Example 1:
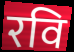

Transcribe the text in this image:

रवि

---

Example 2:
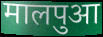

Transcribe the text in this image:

मालपुआ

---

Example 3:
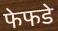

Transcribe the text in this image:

फेफडे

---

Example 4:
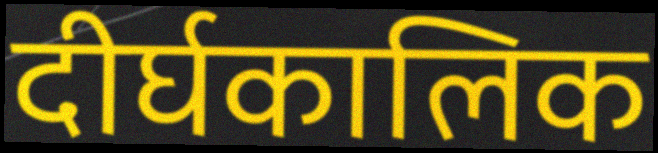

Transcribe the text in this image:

दीर्घकालिक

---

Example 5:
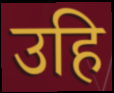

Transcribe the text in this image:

उहि